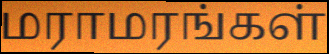
மராமரங்கள்